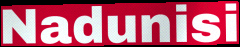
Nadunisi